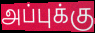
அப்புக்கு